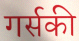
गर्सकी